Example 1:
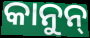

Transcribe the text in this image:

କାନୁନ୍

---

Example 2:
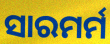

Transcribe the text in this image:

ସାରମର୍ମ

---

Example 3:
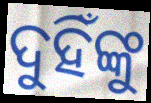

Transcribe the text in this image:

ଦୁହିଁଙ୍କୁ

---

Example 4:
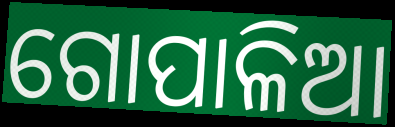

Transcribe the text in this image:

ଗୋପାଳିଆ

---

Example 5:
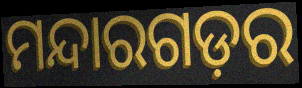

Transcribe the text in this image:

ମନ୍ଦାରଗଡ଼ର